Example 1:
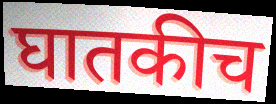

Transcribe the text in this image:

घातकीच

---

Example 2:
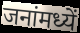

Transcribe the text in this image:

जनांमध्यें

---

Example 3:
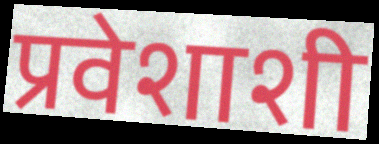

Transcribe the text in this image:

प्रवेशाशी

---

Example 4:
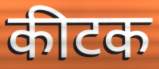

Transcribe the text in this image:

कीटक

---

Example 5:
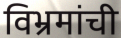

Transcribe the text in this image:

विभ्रमांची